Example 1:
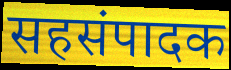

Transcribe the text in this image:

सहसंपादक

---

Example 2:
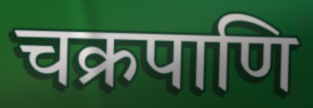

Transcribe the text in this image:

चक्रपाणि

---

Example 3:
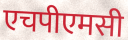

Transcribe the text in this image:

एचपीएमसी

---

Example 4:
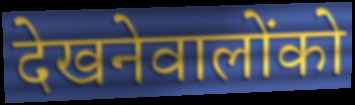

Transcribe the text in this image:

देखनेवालोंको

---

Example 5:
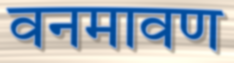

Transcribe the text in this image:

वनमावण